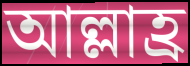
আল্লাহ্র